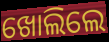
ଖୋଲିଲେ